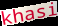
khasi